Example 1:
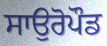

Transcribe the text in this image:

ਸਾਉਰੋਪੌਡ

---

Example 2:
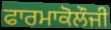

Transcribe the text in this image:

ਫਾਰਮਾਕੋਲੌਜੀ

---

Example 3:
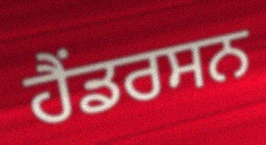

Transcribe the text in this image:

ਹੈਂਡਰਸਨ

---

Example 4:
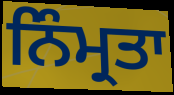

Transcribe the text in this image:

ਨਿੰਮ੍ਰਤਾ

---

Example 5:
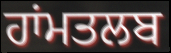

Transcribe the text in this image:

ਹਾਂਮਤਲਬ